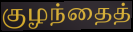
குழந்தைத்